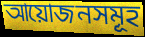
আয়োজনসমূহ